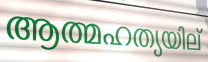
ആത്മഹത്യയില്